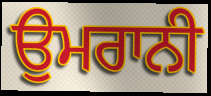
ਉਮਰਾਨੀ